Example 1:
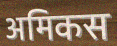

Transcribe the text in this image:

अमिकस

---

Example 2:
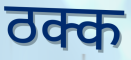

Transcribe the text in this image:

ठक्क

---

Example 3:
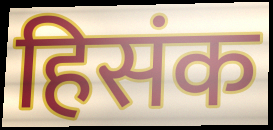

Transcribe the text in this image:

हिसंक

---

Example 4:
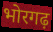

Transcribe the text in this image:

भोरगढ़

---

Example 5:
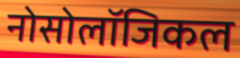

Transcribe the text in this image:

नोसोलॉजिकल